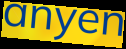
anyen